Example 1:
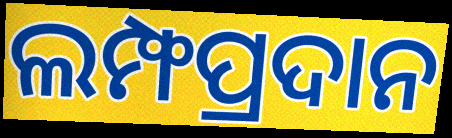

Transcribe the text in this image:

ଲମ୍ଫପ୍ରଦାନ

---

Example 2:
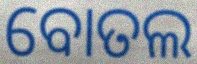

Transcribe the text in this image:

ବୋତଲ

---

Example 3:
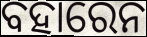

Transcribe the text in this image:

ବହାରେନ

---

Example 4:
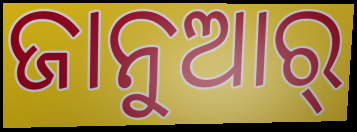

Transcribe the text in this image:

ଜାନୁଆର୍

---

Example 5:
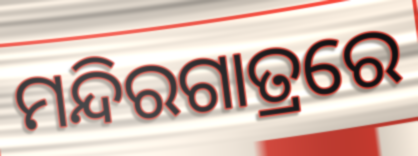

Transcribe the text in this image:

ମନ୍ଦିରଗାତ୍ରରେ